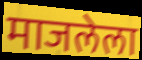
माजलेला